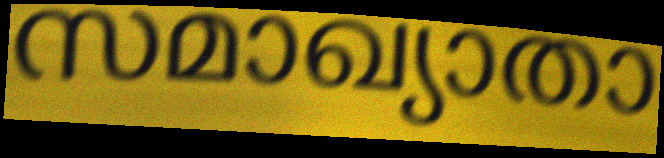
സമാഖ്യാതാ